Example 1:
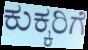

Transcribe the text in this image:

ಕುಕ್ಕರಿಗೆ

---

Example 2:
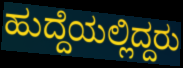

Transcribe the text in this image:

ಹುದ್ದೆಯಲ್ಲಿದ್ದರು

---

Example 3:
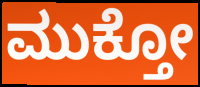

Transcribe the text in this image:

ಮುಕ್ತೋ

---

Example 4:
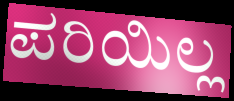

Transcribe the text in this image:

ಪರಿಯಿಲ್ಲ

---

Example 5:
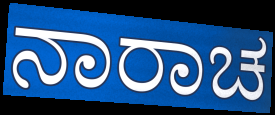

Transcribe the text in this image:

ನಾರಾಚ